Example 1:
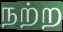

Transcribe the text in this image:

நற்ற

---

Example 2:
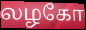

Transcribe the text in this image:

லழகோ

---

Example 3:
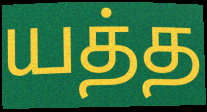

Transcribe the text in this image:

யத்த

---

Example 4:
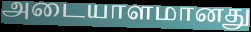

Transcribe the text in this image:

அடையாளமானது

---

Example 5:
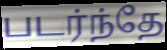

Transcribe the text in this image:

படர்ந்தே